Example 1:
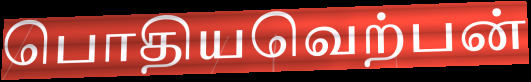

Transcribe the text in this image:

பொதியவெற்பன்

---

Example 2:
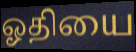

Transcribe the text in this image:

ஓதியை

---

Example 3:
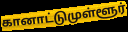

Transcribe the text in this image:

கானாட்டுமுள்ளூர்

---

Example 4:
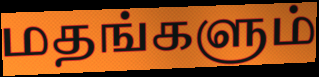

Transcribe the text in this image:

மதங்களும்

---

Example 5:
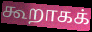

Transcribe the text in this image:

கூறாகக்